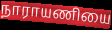
நாராயணியை